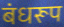
बंधरूप